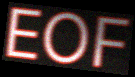
EOF